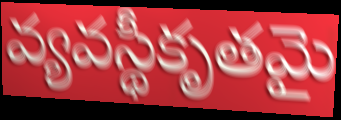
వ్యవస్థీకృతమై